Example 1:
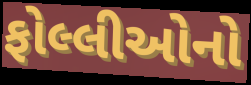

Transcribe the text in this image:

ફોલ્લીઓનો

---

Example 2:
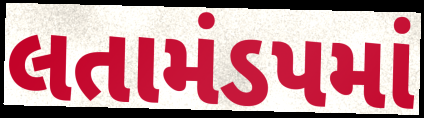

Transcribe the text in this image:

લતામંડપમાં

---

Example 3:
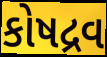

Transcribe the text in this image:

કોષદ્રવ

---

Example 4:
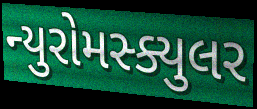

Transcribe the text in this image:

ન્યુરોમસ્ક્યુલર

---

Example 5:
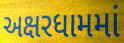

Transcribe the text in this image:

અક્ષરધામમાં